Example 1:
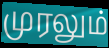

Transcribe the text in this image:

முரலும்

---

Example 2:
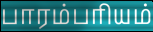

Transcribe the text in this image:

பாரம்பரியம்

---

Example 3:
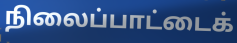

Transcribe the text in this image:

நிலைப்பாட்டைக்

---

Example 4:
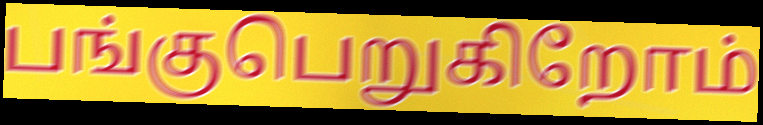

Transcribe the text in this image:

பங்குபெறுகிறோம்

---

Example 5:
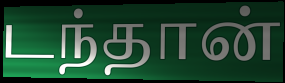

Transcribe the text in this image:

டந்தான்